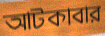
আটকাবার